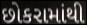
છોકરામાંથી